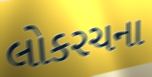
લોકરચના